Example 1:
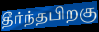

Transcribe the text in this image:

தீர்ந்தபிறகு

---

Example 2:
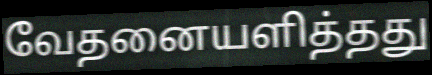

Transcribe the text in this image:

வேதனையளித்தது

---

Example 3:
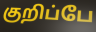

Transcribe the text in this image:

குறிப்பே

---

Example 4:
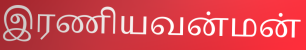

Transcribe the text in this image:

இரணியவன்மன்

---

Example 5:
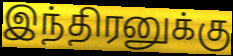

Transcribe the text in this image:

இந்திரனுக்கு